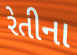
રેતીના